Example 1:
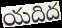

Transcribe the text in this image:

యదిద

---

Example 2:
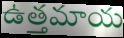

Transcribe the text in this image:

ఉత్తమాయ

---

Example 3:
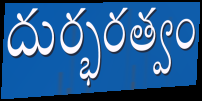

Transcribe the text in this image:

దుర్భరత్వం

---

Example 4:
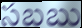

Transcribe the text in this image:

సబబు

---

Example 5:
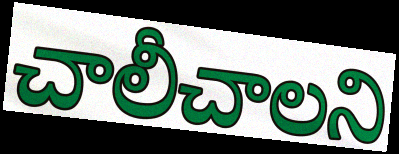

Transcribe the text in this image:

చాలీచాలని